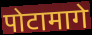
पोटामागे